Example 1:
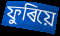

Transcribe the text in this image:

ফুৰিয়ে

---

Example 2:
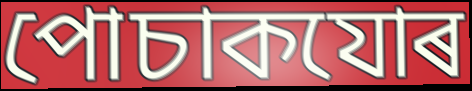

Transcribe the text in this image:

পোচাকযোৰ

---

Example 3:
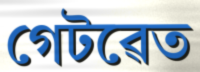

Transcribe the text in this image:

গেটৱেত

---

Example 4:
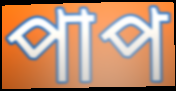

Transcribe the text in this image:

পাপ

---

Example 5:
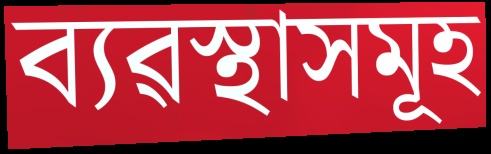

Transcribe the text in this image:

ব্যৱস্থাসমূহ